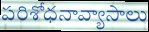
పరిశోధనావ్యాసాలు